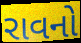
રાવનો